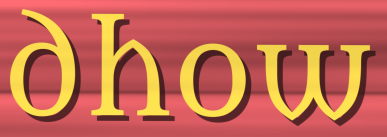
dhow